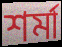
শৰ্মা